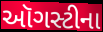
ઑગસ્ટીના